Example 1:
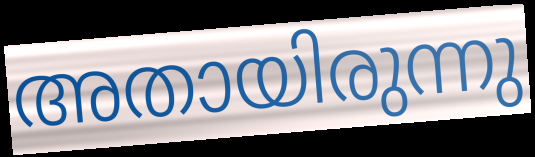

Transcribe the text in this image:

അതായിരുന്നു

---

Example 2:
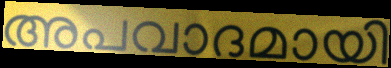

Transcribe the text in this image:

അപവാദമായി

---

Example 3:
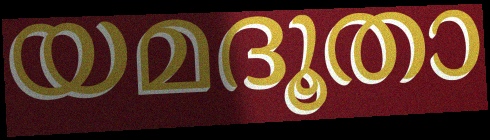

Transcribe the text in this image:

യമദൂതാ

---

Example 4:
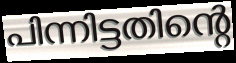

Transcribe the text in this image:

പിന്നിട്ടതിന്റെ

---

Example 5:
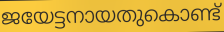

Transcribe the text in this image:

ജയേട്ടനായതുകൊണ്ട്